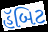
હૅબિટ